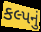
કલ્પનું